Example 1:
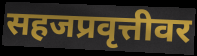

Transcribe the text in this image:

सहजप्रवृत्तीवर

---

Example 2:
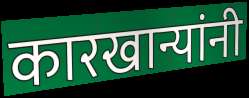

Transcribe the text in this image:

कारखान्यांनी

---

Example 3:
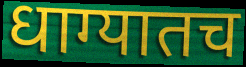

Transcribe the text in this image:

धाग्यातच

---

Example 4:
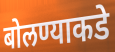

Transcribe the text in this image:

बोलण्याकडे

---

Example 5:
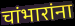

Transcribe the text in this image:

चांभारांना